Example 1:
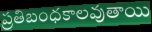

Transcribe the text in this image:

ప్రతిబంధకాలవుతాయి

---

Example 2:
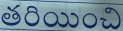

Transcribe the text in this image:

తరియించి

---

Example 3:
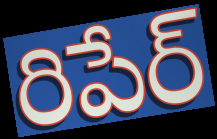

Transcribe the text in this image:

రిపేర్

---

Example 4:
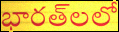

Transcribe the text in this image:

భారత్‌లలో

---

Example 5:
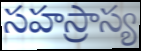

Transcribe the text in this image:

సహస్రాస్య